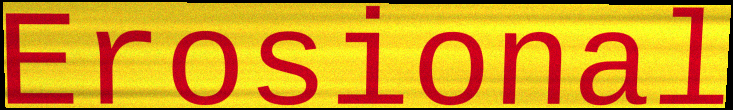
Erosional